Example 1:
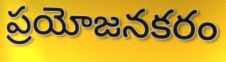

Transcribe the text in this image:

ప్రయోజనకరం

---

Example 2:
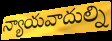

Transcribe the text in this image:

న్యాయవాదుల్ని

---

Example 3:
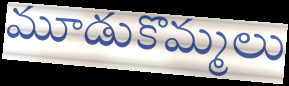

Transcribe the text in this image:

మూడుకొమ్మలు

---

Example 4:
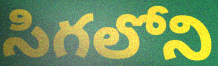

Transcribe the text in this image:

సిగలోని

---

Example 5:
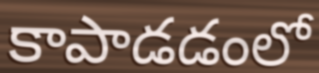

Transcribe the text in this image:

కాపాడడంలో